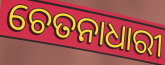
ଚେତନାଧାରୀ